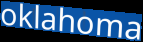
oklahoma